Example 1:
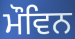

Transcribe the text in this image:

ਮੌਵਿਨ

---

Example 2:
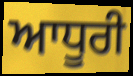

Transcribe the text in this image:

ਆਧੂਰੀ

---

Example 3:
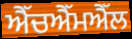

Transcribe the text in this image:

ਐੱਚਐੱਮਐੱਲ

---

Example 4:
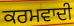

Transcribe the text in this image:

ਕਰਮਵਾਦੀ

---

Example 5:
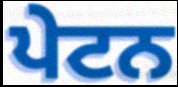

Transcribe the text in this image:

ਪੇਟਨ